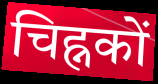
चिह्नकों